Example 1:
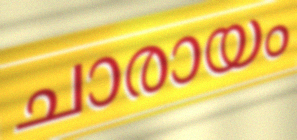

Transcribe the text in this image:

ചാരായം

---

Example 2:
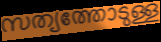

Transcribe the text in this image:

സത്യത്തോടുള്ള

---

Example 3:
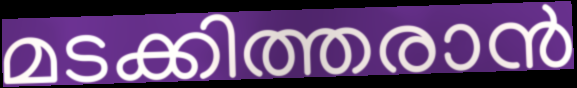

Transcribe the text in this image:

മടക്കിത്തരാൻ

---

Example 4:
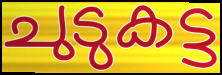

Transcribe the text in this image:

ചുടുകട്ട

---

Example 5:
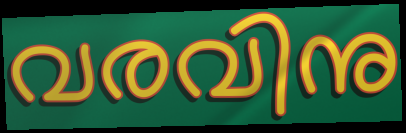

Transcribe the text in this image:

വരവിനു